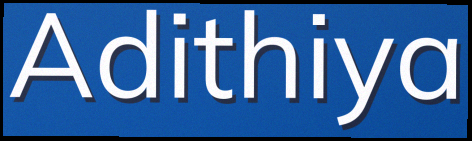
Adithiya